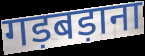
गड़बड़ाना